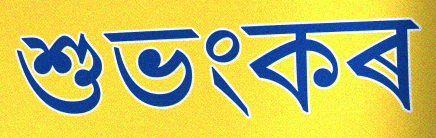
শুভংকৰ